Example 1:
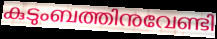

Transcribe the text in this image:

കുടുംബത്തിനുവേണ്ടി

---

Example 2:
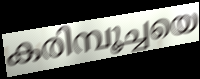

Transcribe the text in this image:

കരിമ്പൂച്ചയെ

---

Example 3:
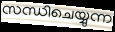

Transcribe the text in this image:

സന്ധിചെയ്യുന്ന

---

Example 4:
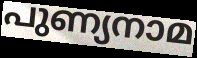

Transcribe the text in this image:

പുണ്യനാമ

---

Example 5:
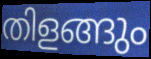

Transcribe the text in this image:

തിളങ്ങും